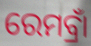
ରେମବ୍ରାଁ